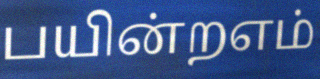
பயின்றஎம்